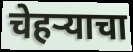
चेहर्‍याचा